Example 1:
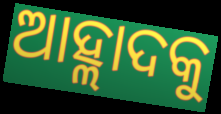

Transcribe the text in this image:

ଆହ୍ଲାଦକୁ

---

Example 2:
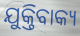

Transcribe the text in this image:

ଯୁକ୍ତିବାକ୍ୟ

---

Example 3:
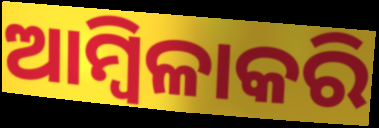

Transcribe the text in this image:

ଆମ୍ବିଳାକରି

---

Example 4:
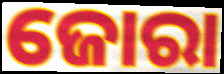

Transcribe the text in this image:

ଜୋରା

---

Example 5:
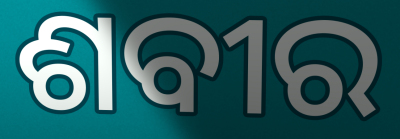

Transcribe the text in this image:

ଶବୀର